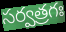
సర్వత్రగః